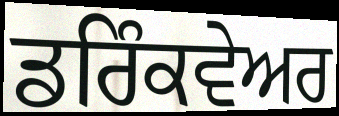
ਡਰਿੰਕਵੇਅਰ